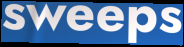
sweeps